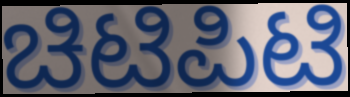
ಚಿಟಿಪಿಟಿ